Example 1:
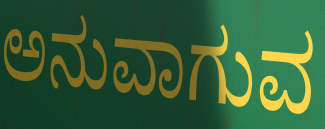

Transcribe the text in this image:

ಅನುವಾಗುವ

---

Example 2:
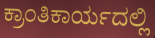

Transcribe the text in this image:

ಕ್ರಾಂತಿಕಾರ್ಯದಲ್ಲಿ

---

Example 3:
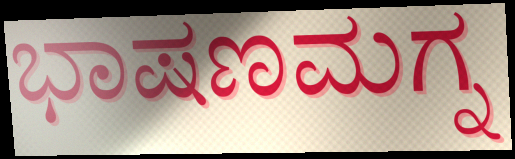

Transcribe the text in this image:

ಭಾಷಣಮಗ್ನ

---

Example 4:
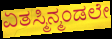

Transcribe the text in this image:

ಏತಸ್ಮಿನ್ಮಂಡಲೇ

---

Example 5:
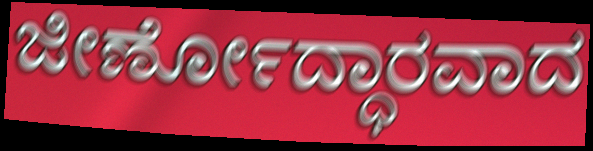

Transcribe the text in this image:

ಜೀರ್ಣೋದ್ಧಾರವಾದ